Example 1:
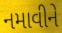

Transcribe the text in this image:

નમાવીને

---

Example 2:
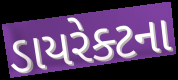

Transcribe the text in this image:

ડાયરેક્ટના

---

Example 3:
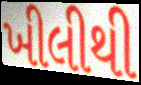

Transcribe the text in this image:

ખીલીથી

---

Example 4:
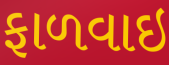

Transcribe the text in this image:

ફાળવાઇ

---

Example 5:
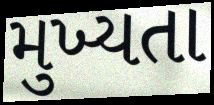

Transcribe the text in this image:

મુખ્યતા